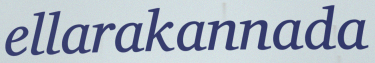
ellarakannada